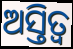
ଅସ୍ତିତ୍ଵ